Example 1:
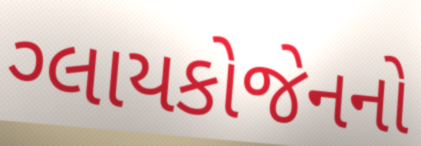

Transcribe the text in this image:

ગ્લાયકોજેનનો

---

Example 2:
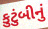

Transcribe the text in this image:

કુટુંબીનું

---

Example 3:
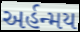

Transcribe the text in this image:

અર્હન્મય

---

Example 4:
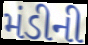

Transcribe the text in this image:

મંડીની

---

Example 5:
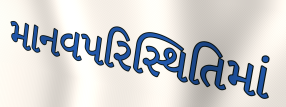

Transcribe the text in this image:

માનવપરિસ્થિતિમાં